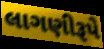
લાગણીરૂપે